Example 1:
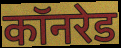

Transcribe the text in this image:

कॉनरेड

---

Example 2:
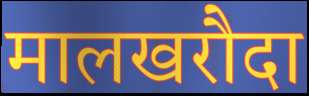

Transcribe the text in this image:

मालखरौदा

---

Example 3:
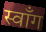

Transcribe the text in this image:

स्वाँग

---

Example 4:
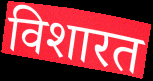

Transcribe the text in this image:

विशारत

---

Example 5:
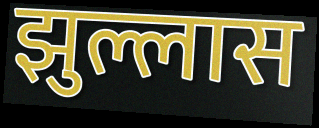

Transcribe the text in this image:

झुल्लास